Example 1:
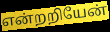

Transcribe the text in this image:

என்றறியேன்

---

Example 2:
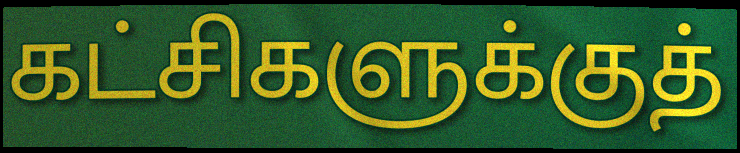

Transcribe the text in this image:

கட்சிகளுக்குத்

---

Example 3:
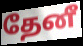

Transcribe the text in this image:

தேனீ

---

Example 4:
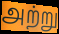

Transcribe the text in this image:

அற்று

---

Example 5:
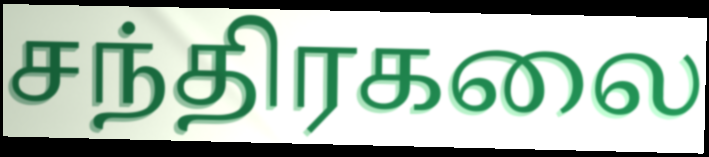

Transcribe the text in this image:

சந்திரகலை